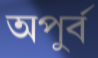
অপুর্ব